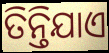
ତିନ୍ତିଯାଏ